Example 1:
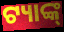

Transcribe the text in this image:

ଟ୍ୟାଙ୍କ୍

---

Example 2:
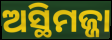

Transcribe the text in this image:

ଅସ୍ଥିମଜ୍ଜା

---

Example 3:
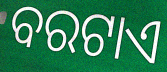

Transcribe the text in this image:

ବରଟାଏ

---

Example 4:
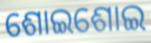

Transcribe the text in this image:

ଶୋଇଶୋଇ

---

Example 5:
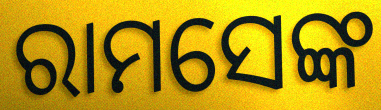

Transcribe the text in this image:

ରାମସେଙ୍କ